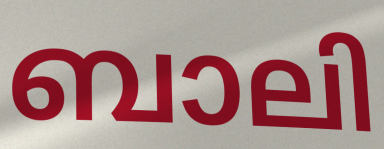
ബാലി